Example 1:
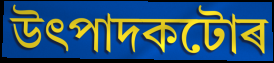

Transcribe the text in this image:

উৎপাদকটোৰ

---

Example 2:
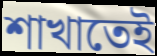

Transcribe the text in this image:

শাখাতেই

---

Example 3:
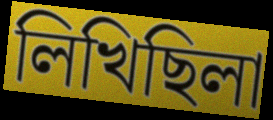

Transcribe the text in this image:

লিখিছিলা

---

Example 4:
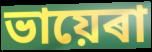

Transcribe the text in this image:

ভায়েৰা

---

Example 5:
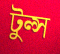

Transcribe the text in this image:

টুল্স